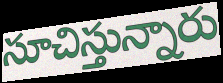
సూచిస్తున్నారు